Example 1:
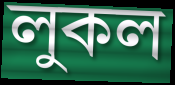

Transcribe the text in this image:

লুকল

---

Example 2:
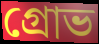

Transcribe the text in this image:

গ্রোভ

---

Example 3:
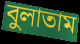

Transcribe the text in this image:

বুলাতাম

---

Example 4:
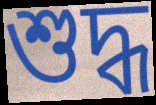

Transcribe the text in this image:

শুদ্ধ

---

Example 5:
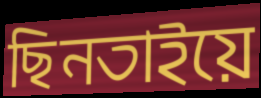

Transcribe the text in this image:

ছিনতাইয়ে